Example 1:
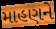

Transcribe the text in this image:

માહણને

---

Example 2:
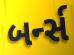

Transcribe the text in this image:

બર્ન્સ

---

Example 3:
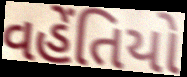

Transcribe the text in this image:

વહેંતિયો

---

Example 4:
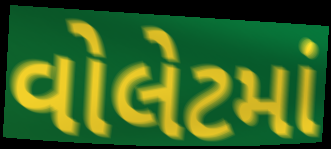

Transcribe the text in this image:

વોલેટમાં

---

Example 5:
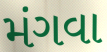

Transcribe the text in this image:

મંગવા